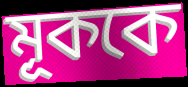
মূককে